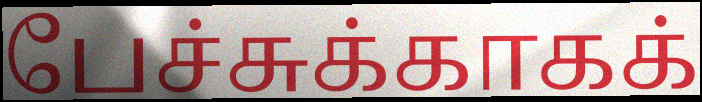
பேச்சுக்காகக்